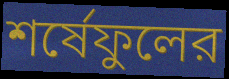
শর্ষেফুলের